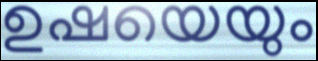
ഉഷയെയും